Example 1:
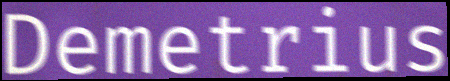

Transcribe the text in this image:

Demetrius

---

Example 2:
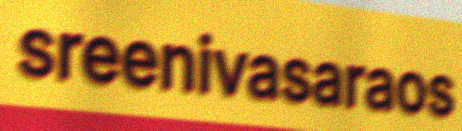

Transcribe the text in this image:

sreenivasaraos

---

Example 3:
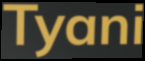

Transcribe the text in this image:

Tyani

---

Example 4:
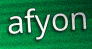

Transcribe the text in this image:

afyon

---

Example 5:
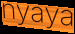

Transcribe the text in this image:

nyaya